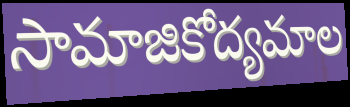
సామాజికోద్యమాల